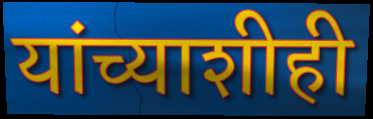
यांच्याशीही